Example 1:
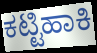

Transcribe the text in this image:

ಕಟ್ಟಿಹಾಕಿ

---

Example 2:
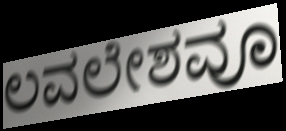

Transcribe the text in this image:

ಲವಲೇಶವೂ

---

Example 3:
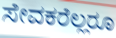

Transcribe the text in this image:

ಸೇವಕರೆಲ್ಲರೂ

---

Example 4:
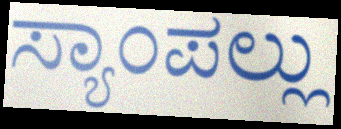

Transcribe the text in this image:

ಸ್ಯಾಂಪಲ್ಲು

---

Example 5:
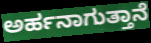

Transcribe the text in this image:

ಅರ್ಹನಾಗುತ್ತಾನೆ